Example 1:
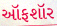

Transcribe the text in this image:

ઑફશૉર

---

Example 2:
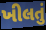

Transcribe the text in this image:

ખીલતું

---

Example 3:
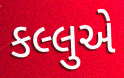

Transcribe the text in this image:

કલ્લુએ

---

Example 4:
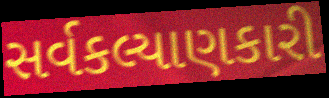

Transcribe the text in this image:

સર્વકલ્યાણકારી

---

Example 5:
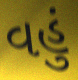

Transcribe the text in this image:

વહું